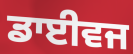
ਡਾਈਵਜ